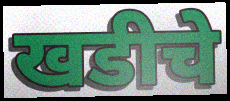
खडीचे